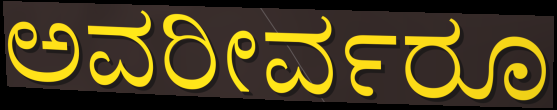
ಅವರೀರ್ವರೂ